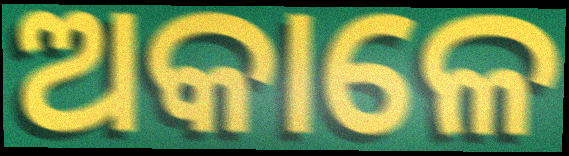
ଅକାଳେ